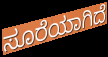
ಸೂರೆಯಾಗಿದೆ